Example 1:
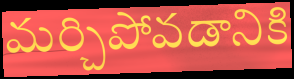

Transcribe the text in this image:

మర్చిపోవడానికి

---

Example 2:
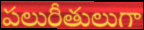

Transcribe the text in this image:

పలురీతులుగా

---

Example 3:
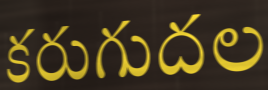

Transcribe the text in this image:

కరుగుదల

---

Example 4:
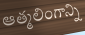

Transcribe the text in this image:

ఆత్మలింగాన్ని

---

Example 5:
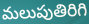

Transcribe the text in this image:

మలుపుతిరిగి